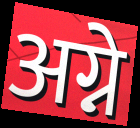
अग्ने